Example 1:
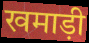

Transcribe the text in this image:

खमाड़ी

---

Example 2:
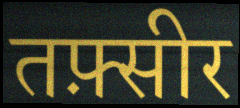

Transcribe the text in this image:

तफ़्सीर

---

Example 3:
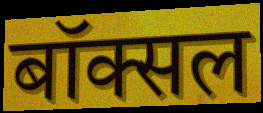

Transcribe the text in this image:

बॉक्सल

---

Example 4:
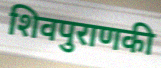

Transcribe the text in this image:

शिवपुराणकी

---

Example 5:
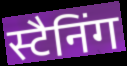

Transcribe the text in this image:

स्टैनिंग